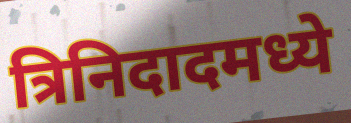
त्रिनिदादमध्ये